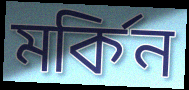
মর্কিন